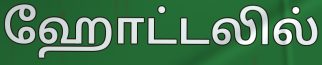
ஹோட்டலில்